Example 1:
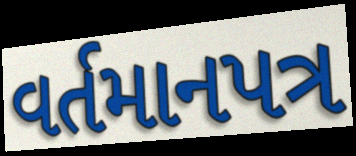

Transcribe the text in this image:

વર્તમાનપત્ર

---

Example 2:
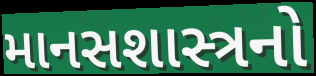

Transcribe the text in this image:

માનસશાસ્ત્રનો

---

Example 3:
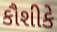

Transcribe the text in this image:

કૌશીકે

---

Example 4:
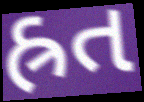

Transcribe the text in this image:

હ્રત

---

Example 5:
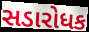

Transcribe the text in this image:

સડારોધક